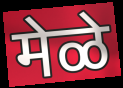
मेळे